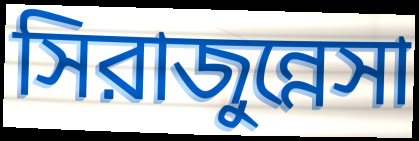
সিরাজুন্নেসা